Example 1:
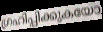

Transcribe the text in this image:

ഗ്രഹിപ്പിക്കുകയോ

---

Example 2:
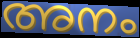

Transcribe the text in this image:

അനം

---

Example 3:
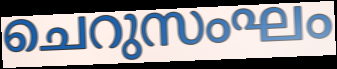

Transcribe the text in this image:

ചെറുസംഘം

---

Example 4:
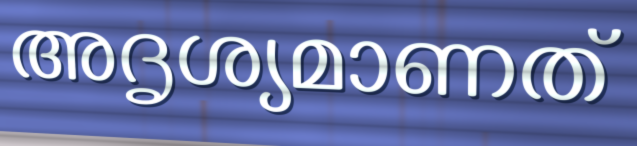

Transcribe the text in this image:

അദൃശ്യമാണത്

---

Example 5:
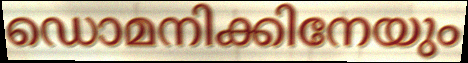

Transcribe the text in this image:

ഡൊമനിക്കിനേയും